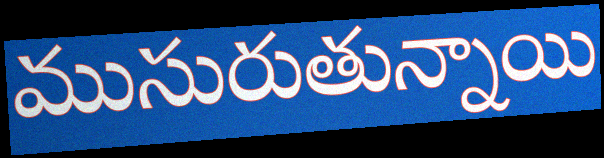
ముసురుతున్నాయి